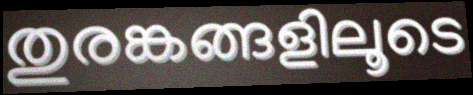
തുരങ്കങ്ങളിലൂടെ